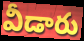
వీడారు